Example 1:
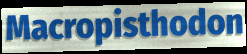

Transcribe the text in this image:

Macropisthodon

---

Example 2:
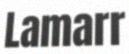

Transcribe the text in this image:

Lamarr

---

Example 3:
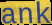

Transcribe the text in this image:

ank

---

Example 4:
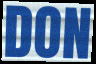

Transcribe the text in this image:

DON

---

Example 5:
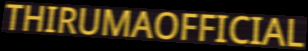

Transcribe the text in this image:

THIRUMAOFFICIAL